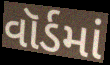
વૉર્ડમાં